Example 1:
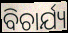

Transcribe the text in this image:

ବିଚାର୍ଯ୍ୟ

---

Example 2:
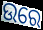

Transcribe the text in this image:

ଉରେ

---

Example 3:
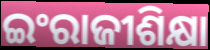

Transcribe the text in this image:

ଇଂରାଜୀଶିକ୍ଷା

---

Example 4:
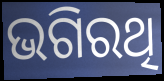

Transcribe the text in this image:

ଭଗିରଥି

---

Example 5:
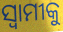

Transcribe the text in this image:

ସ୍ୱାମୀକୁ